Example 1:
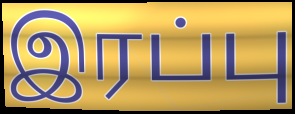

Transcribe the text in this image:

இரப்பு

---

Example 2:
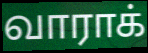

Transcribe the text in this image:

வாராக்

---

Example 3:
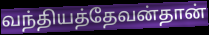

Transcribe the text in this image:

வந்தியத்தேவன்தான்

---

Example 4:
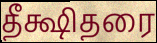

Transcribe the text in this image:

தீக்ஷிதரை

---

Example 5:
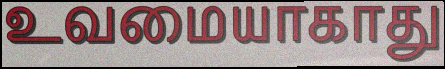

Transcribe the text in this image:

உவமையாகாது